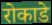
रोकाडे